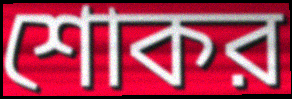
শোকর